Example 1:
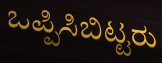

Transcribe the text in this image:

ಒಪ್ಪಿಸಿಬಿಟ್ಟರು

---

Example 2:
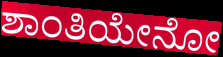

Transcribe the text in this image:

ಶಾಂತಿಯೇನೋ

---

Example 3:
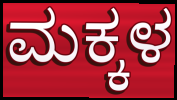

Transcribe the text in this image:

ಮಕ್ಕಳ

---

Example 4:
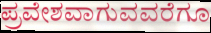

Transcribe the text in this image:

ಪ್ರವೇಶವಾಗುವವರೆಗೂ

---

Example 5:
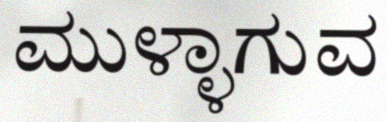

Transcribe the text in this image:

ಮುಳ್ಳಾಗುವ